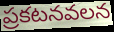
ప్రకటనవలన